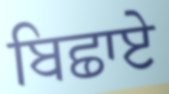
ਬਿਛਾਏ